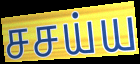
சசய்ய